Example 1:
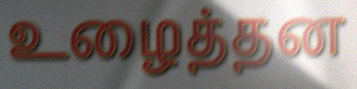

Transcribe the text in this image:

உழைத்தன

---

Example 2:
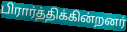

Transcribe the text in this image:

பிரார்த்திக்கின்றனர்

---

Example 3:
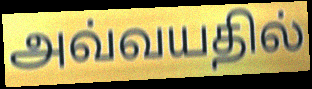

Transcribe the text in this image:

அவ்வயதில்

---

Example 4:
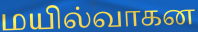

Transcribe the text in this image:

மயில்வாகன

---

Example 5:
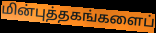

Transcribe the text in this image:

மின்புத்தகங்களைப்